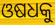
ଓଷଧକୁ